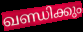
ഖണ്ഡിക്കും